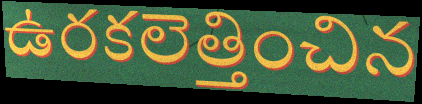
ఉరకలెత్తించిన